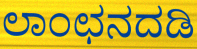
ಲಾಂಛನದಡಿ